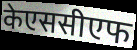
केएससीएफ